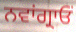
ਨਵਾਂਗ੍ਰਾਓਂ